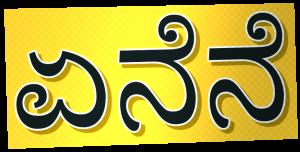
ಏನೆನೆ